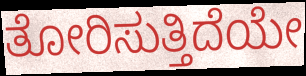
ತೋರಿಸುತ್ತಿದೆಯೇ